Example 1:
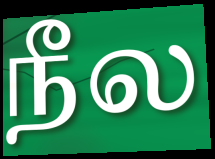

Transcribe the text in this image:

நீல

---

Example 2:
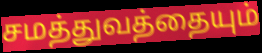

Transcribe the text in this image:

சமத்துவத்தையும்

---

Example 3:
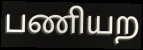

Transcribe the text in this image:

பணியற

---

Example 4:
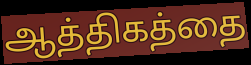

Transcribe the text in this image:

ஆத்திகத்தை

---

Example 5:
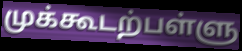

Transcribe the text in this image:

முக்கூடற்பள்ளு